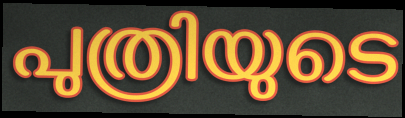
പുത്രിയുടെ